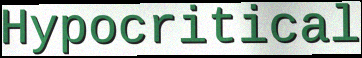
Hypocritical